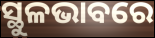
ସ୍ଥୁଳଭାବରେ